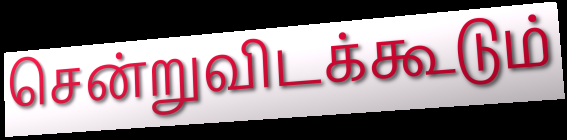
சென்றுவிடக்கூடும்